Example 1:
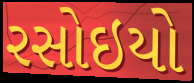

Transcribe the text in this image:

રસોઇયો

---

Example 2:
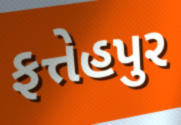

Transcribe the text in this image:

ફત્તેહપુર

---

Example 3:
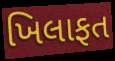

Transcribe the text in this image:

ખિલાફત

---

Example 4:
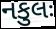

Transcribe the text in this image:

નકુલઃ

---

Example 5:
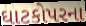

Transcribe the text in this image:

ઘાટકોપરના